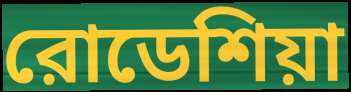
রোডেশিয়া